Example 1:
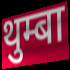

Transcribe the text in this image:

थुम्बा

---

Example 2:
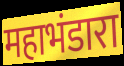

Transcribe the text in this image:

महाभंडारा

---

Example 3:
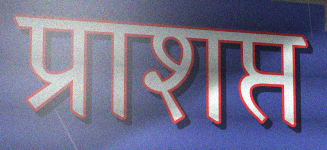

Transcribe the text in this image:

प्राशप्त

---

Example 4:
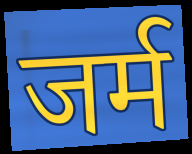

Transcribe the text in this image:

जर्म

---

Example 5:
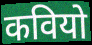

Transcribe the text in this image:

कवियो